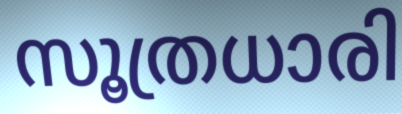
സൂത്രധാരി